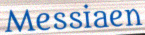
Messiaen